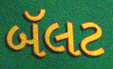
બૅલટ